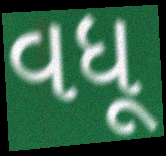
વધૂ